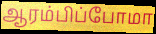
ஆரம்பிப்போமா